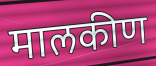
मालकीण